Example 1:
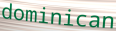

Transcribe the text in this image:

dominican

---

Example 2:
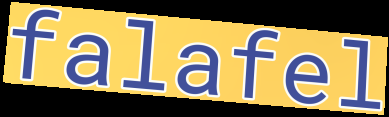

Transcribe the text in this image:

falafel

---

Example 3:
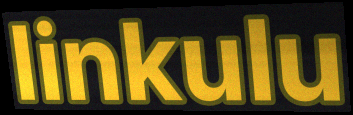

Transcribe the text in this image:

linkulu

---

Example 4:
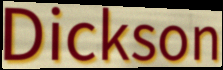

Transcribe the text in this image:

Dickson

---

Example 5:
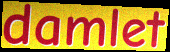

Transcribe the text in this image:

damlet